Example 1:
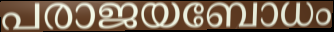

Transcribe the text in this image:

പരാജയബോധം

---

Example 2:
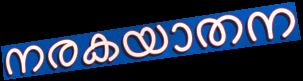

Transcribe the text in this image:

നരകയാതന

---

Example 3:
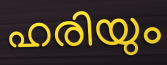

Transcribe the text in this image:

ഹരിയും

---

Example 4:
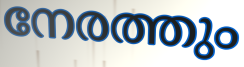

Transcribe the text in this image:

നേരത്തും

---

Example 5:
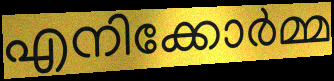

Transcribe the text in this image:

എനിക്കോർമ്മ